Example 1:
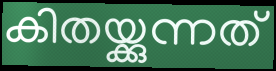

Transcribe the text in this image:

കിതയ്ക്കുന്നത്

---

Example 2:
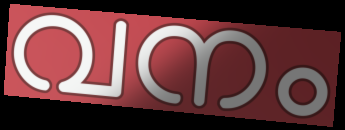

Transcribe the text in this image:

വനം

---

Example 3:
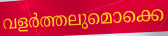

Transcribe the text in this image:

വളർത്തലുമൊക്കെ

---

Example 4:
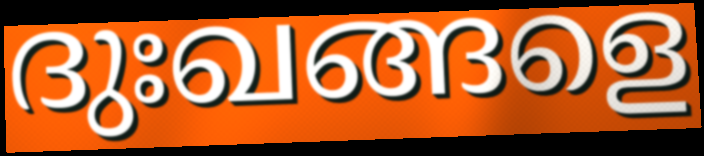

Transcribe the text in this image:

ദുഃഖങ്ങളെ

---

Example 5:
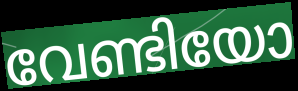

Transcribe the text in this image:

വേണ്ടിയോ